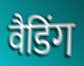
वैडिंग